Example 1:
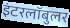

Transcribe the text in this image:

इंटरलॉबुलर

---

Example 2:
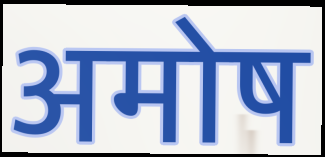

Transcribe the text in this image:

अमोष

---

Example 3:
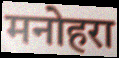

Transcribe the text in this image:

मनोहरा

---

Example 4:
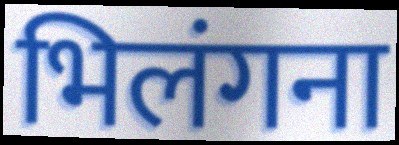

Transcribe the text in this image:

भिलंगना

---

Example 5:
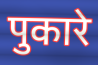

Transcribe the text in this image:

पुकारे